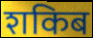
शकिब